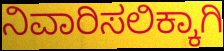
ನಿವಾರಿಸಲಿಕ್ಕಾಗಿ